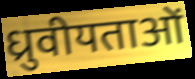
ध्रुवीयताओं